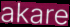
akare